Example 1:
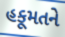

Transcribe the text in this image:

હકૂમતને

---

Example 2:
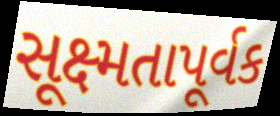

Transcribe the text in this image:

સૂક્ષ્મતાપૂર્વક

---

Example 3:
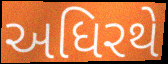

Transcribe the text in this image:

અધિરથે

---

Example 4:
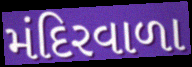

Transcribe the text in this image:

મંદિરવાળા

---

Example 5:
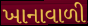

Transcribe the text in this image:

ખાનાવાળી